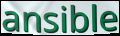
ansible